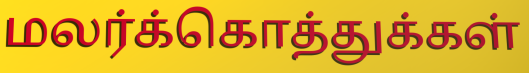
மலர்க்கொத்துக்கள்